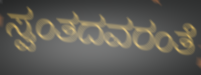
ಸ್ವಂತದವರಂತೆ